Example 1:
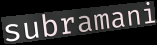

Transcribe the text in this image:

subramani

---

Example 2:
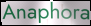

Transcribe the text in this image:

Anaphora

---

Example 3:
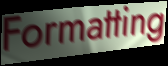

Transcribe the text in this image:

Formatting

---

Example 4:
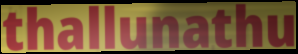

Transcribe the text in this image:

thallunathu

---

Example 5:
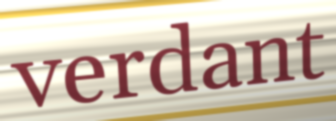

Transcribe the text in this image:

verdant